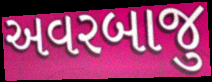
અવરબાજુ